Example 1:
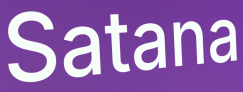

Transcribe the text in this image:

Satana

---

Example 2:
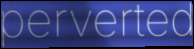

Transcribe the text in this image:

perverted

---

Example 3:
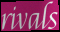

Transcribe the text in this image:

rivals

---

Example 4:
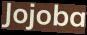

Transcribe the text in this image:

Jojoba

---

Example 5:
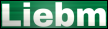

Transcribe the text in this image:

Liebm